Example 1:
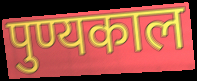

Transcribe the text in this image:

पुण्यकाल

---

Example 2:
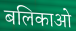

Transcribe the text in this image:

बलिकाओ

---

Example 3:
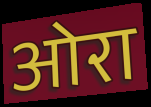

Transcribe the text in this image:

ओरा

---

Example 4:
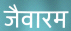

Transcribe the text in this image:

जैवारम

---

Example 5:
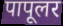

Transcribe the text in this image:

पापूलर